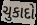
ચુકાદો